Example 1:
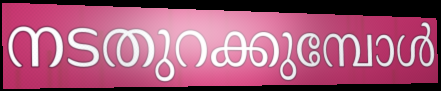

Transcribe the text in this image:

നടതുറക്കുമ്പോൾ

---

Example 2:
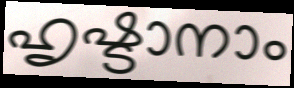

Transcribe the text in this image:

ഹൃഷ്ടാനാം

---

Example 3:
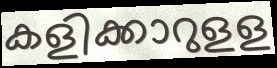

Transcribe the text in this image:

കളിക്കാറുളള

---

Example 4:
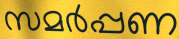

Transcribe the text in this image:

സമർപ്പണ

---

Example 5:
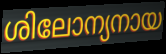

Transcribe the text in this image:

ശിലോന്യനായ